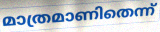
മാത്രമാണിതെന്ന്